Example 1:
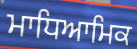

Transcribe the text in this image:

ਮਾਧਿਆਮਿਕ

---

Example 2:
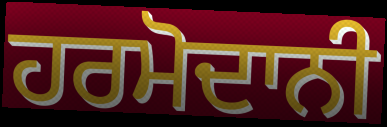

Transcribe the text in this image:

ਹਰਮੋਦਾਨੀ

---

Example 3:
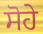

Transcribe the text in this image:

ਸੋਹੇ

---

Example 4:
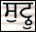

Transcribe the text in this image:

ਸੁਟ੍ਠੁ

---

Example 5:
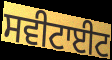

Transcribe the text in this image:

ਸਵੀਟਾਈਟ